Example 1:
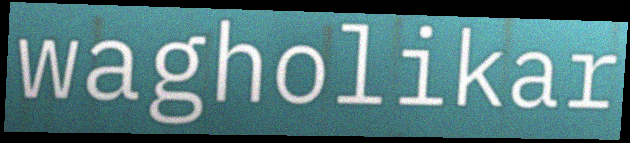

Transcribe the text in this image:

wagholikar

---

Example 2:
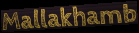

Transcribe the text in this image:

Mallakhamb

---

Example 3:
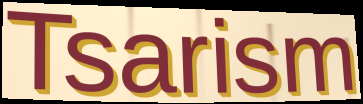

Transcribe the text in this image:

Tsarism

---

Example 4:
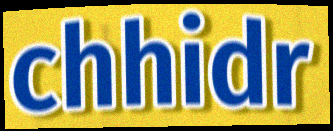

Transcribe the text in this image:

chhidr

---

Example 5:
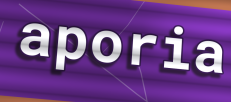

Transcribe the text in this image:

aporia